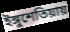
ইঙ্গুশেতিয়ায়